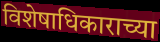
विशेषाधिकाराच्या